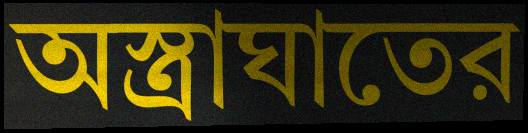
অস্ত্রাঘাতের